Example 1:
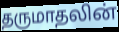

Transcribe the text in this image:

தருமாதலின்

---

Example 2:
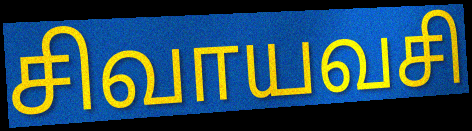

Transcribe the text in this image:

சிவாயவசி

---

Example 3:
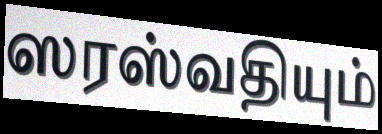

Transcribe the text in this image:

ஸரஸ்வதியும்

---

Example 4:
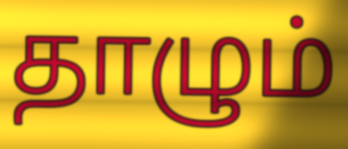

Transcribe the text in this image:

தாழும்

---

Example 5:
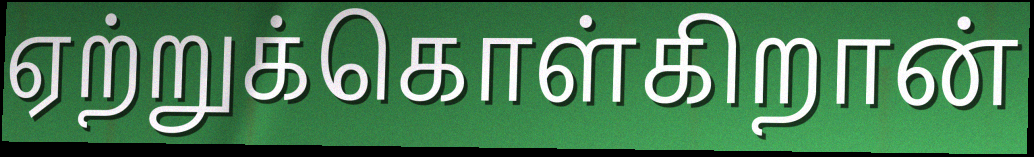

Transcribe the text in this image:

ஏற்றுக்கொள்கிறான்